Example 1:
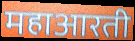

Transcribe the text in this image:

महाआरती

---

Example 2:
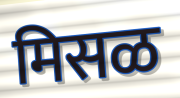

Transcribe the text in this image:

मिसळ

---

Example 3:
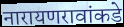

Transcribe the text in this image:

नारायणरावांकडे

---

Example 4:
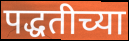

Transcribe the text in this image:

पद्धतीच्या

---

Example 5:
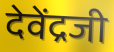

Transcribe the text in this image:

देवेंद्रजी